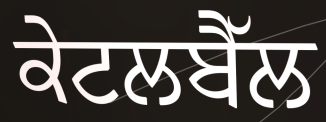
ਕੇਟਲਬੈੱਲ